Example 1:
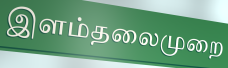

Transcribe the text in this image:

இளம்தலைமுறை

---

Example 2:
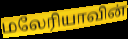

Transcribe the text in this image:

மலேரியாவின்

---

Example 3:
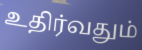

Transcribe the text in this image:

உதிர்வதும்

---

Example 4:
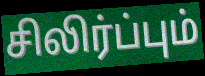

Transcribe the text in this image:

சிலிர்ப்பும்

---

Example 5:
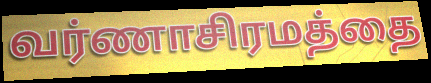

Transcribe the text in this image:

வர்ணாசிரமத்தை